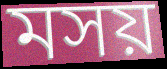
মসয়